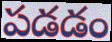
పడడం